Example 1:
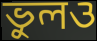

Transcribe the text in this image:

ভুলও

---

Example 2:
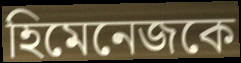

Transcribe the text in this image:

হিমেনেজকে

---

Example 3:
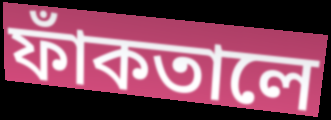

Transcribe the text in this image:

ফাঁকতালে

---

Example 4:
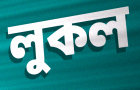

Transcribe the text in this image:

লুকল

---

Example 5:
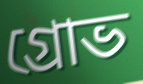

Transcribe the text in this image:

গ্রোভ